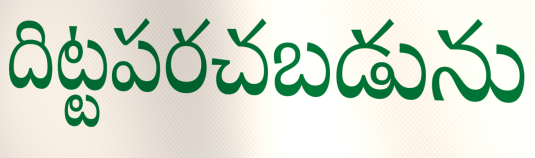
దిట్టపరచబడును